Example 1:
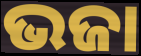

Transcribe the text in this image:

ଭଜା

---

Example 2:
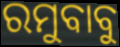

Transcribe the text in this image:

ରମୁବାବୁ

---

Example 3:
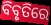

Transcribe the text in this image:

ବିବୃତିରେ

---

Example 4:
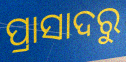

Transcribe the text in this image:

ପ୍ରାସାଦରୁ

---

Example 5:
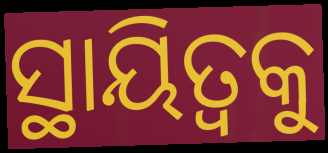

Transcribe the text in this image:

ସ୍ଥାୟିତ୍ୱକୁ